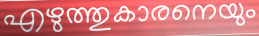
എഴുത്തുകാരനെയും